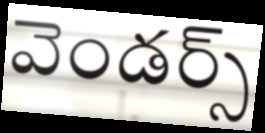
వెండర్స్